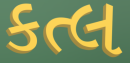
કત્લ